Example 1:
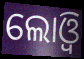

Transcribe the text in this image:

ଲୋଓ୍ବି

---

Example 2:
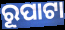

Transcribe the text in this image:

ରୂପାଟା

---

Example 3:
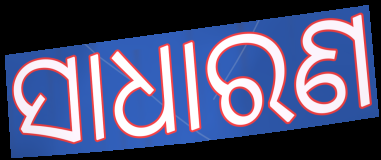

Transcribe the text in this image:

ସାଧାରଣ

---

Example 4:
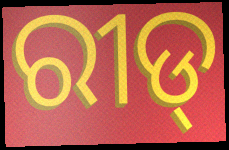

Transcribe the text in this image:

ରୀଡ୍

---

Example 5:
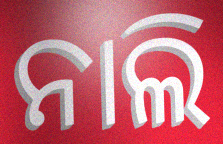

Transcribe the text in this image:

ନାଲି